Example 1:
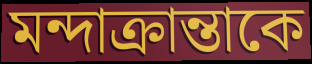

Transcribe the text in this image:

মন্দাক্রান্তাকে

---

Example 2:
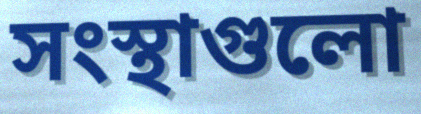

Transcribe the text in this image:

সংস্থাগুলো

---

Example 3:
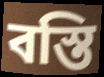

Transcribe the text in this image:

বস্তি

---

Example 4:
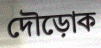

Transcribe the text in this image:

দৌড়োক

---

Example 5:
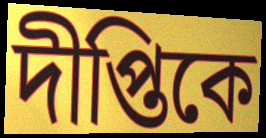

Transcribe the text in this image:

দীপ্তিকে